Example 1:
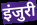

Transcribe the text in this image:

इंजुरी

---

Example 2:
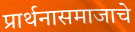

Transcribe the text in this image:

प्रार्थनासमाजाचे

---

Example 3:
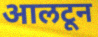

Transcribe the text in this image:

आलटून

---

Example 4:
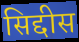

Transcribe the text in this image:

सिद्दीस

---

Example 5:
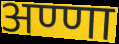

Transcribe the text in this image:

अण्णा